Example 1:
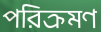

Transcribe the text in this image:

পরিক্রমণ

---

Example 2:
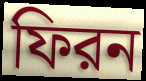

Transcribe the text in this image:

ফিরন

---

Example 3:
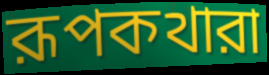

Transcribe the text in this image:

রূপকথারা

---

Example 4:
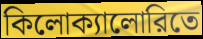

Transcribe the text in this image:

কিলোক্যালোরিতে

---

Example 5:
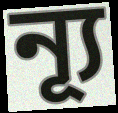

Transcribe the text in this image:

ন্যূ